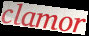
clamor